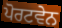
ਪੋਰਟਵੇਨ